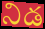
నిడ